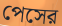
পেসের